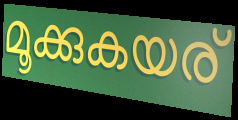
മൂക്കുകയര്